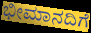
ಭೀಮಾನದಿಗೆ